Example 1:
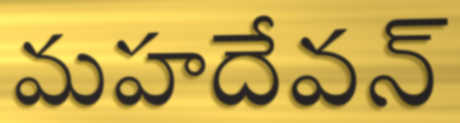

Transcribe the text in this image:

మహదేవన్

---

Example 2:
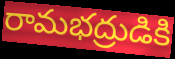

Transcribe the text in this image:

రామభద్రుడికి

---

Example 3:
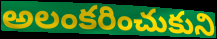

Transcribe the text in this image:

అలంకరించుకుని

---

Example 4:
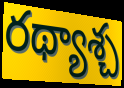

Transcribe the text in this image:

రథ్యాశ్చ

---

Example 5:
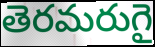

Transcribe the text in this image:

తెరమరుగై